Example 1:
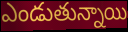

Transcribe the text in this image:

ఎండుతున్నాయి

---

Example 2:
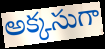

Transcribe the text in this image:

అక్కసుగా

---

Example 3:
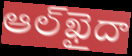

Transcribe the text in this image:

ఆల్‌ఖైదా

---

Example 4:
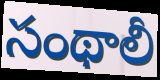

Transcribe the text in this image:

సంథాలీ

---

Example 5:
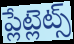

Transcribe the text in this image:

ప్లేట్లెట్స్